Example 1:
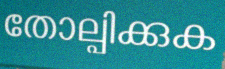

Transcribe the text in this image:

തോല്പിക്കുക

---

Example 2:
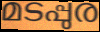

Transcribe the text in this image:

മടപ്പുര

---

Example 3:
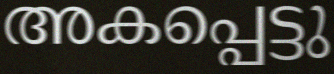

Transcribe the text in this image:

അകപ്പെട്ടു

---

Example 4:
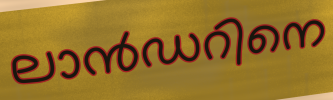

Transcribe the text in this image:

ലാൻഡറിനെ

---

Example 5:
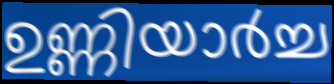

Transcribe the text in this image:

ഉണ്ണിയാർച്ച